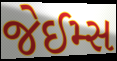
જેઈમ્સ